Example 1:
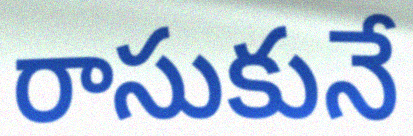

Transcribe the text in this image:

రాసుకునే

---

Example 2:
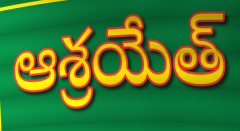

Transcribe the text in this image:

ఆశ్రయేత్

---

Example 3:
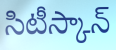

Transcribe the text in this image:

సిటీస్కాన్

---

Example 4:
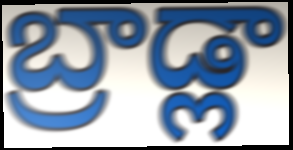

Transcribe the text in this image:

బ్రాడ్లా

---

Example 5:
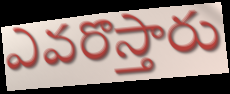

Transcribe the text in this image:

ఎవరొస్తారు